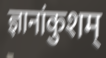
ज्ञानांकुशम्